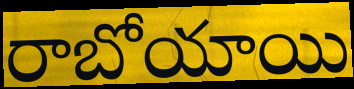
రాబోయాయి